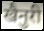
खैनुरी